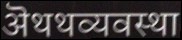
ऄथथव्यवस्था